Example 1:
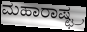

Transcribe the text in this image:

ಮಹಾರಾಷ್ಟ್ರ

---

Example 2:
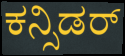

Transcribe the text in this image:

ಕನ್ಸಿಡರ್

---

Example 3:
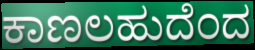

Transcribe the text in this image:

ಕಾಣಲಹುದೆಂದ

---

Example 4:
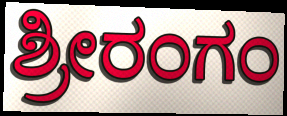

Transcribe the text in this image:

ಶ್ರೀರಂಗಂ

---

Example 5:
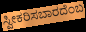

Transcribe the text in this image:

ಸ್ವೀಕರಿಸಬಾರದೆಂಬ